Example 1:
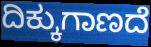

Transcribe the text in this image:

ದಿಕ್ಕುಗಾಣದೆ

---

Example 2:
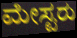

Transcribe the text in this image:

ಮೇಸ್ಟರು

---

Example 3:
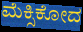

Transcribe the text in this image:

ಮೆಕ್ಸಿಕೋದ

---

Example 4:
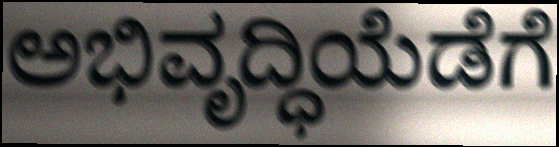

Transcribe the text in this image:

ಅಭಿವೃದ್ಧಿಯೆಡೆಗೆ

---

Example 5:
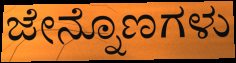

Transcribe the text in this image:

ಜೇನ್ನೊಣಗಳು